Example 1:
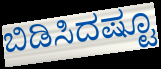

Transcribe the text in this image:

ಬಿಡಿಸಿದಷ್ಟೂ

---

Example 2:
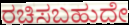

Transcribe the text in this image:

ರಚಿಸಬಹುದೇ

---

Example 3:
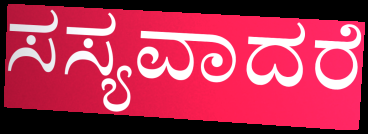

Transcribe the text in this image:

ಸಸ್ಯವಾದರೆ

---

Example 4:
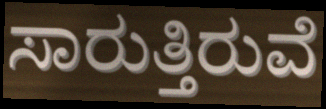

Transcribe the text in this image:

ಸಾರುತ್ತಿರುವೆ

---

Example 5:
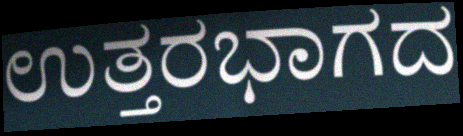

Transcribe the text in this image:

ಉತ್ತರಭಾಗದ